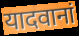
यादवानां